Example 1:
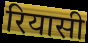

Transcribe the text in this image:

रियासी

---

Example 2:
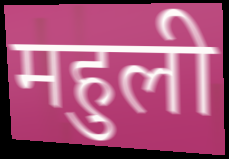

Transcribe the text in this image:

महुली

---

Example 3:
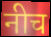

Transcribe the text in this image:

नीच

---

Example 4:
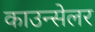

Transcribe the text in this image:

काउन्सेलर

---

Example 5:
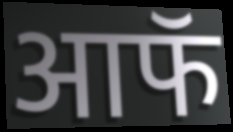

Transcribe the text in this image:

आफॅ